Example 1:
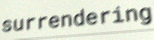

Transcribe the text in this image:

surrendering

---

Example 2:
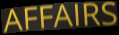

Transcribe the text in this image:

AFFAIRS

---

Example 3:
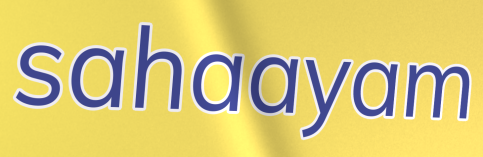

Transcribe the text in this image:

sahaayam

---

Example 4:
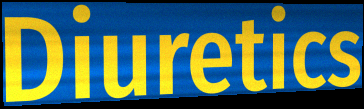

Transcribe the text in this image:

Diuretics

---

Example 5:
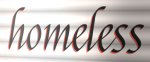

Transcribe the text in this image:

homeless